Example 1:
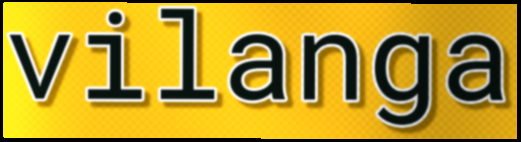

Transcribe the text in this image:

vilanga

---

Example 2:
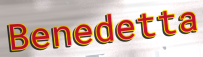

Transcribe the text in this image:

Benedetta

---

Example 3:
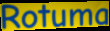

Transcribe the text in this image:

Rotuma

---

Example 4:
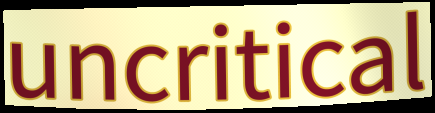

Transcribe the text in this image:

uncritical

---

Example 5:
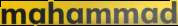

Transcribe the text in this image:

mahammad